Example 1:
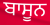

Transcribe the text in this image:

ਬਾਸੂਨ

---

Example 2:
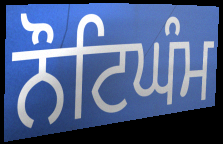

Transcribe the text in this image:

ਨੌਟਿਘੰਮ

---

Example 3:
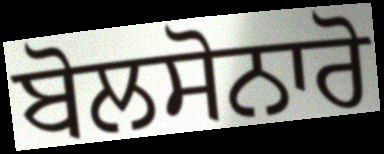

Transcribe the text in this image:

ਬੋਲਸੋਨਾਰੋ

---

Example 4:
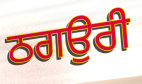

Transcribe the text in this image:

ਠਗਉਰੀ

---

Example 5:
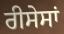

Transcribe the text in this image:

ਰੀਸੇਸਾਂ